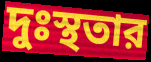
দুঃস্থতার